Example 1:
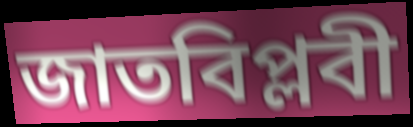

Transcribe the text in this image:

জাতবিপ্লবী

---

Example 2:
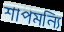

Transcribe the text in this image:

শাপমন্যি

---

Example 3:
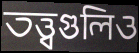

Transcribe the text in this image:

তত্ত্বগুলিও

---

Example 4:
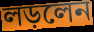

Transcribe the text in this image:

লড়লেন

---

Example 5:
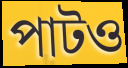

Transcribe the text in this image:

পাটও